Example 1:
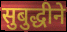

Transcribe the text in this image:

सुबुद्धीने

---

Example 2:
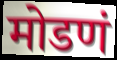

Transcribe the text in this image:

मोडणं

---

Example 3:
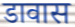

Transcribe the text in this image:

डावास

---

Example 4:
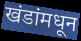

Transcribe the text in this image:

खंडांमधून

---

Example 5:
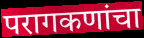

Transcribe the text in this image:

परागकणांचा